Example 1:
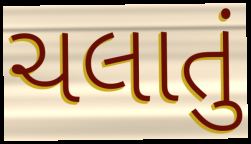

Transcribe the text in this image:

ચલાતું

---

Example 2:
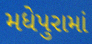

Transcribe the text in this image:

મધેપુરામાં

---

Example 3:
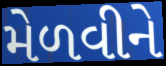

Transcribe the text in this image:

મેળવીને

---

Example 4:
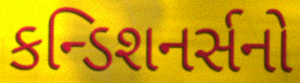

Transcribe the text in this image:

કન્ડિશનર્સનો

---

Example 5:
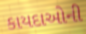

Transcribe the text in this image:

કાયદાઓની